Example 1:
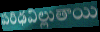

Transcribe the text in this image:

పరిఢవిల్లుతాయి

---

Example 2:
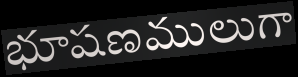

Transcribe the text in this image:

భూషణములుగా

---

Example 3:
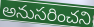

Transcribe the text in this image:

అనుసరించని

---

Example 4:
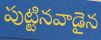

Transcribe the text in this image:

పుట్టినవాడైన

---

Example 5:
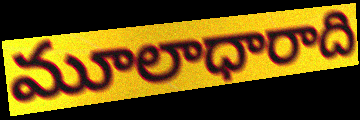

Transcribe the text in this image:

మూలాధారాది